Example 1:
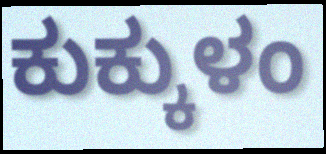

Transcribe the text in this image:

ಕುಕ್ಕುಳಂ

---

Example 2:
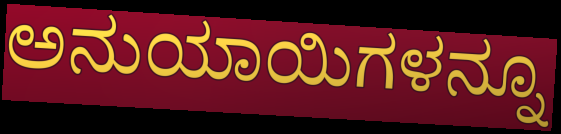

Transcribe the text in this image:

ಅನುಯಾಯಿಗಳನ್ನೂ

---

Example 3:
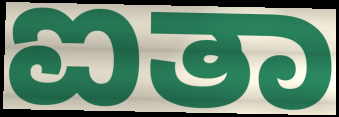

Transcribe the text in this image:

ಐತಾ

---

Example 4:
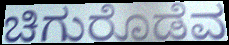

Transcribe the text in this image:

ಚಿಗುರೊಡೆವ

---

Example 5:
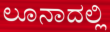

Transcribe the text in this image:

ಲೂನಾದಲ್ಲಿ